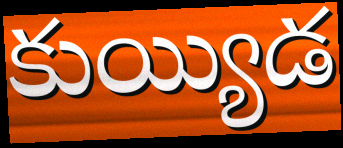
కుయ్యిడ